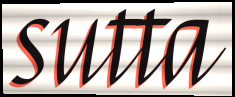
sutta